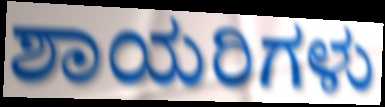
ಶಾಯರಿಗಳು